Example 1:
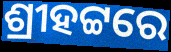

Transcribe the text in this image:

ଶ୍ରୀହଟ୍ଟରେ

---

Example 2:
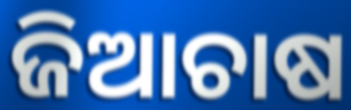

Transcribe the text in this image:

ଜିଆଚାଷ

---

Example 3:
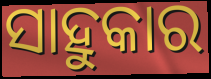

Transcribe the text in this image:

ସାହୁକାର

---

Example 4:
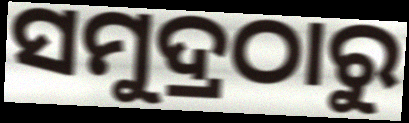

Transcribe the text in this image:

ସମୁଦ୍ରଠାରୁ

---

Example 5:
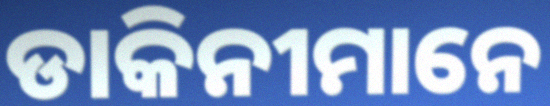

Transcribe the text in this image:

ଡାକିନୀମାନେ